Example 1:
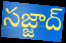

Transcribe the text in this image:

సజ్జాద్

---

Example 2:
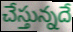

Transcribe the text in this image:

చేస్తున్నదే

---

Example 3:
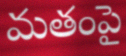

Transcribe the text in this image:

మతంపై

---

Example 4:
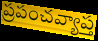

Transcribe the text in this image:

ప్రపంచవ్యాప్త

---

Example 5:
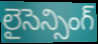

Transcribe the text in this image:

లైసెన్సింగ్